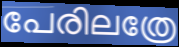
പേരിലത്രേ